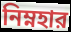
নিম্নহার